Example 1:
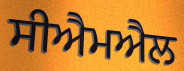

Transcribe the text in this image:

ਸੀਐਮਐਲ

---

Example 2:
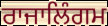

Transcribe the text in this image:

ਰਾਜਾਲਿੰਗਮ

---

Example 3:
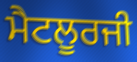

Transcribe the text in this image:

ਮੈਟਲੂਰਜੀ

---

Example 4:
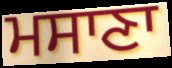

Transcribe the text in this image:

ਮਸਾਣਾ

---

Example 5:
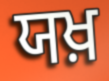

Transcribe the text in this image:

ਯਖ਼